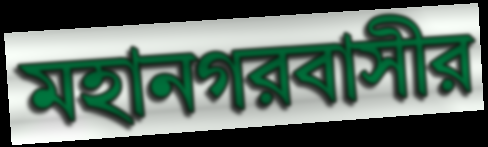
মহানগরবাসীর